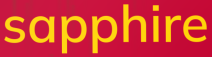
sapphire